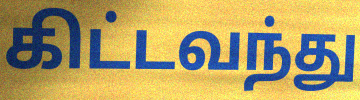
கிட்டவந்து